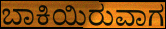
ಬಾಕಿಯಿರುವಾಗ